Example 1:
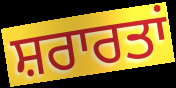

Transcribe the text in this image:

ਸ਼ਰਾਰਤਾਂ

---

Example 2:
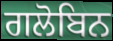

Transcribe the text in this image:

ਗਲੋਬਿਨ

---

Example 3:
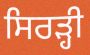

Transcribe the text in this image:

ਸਿਰੜ੍ਹੀ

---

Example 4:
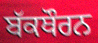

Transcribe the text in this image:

ਬੱਕਥੌਰਨ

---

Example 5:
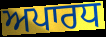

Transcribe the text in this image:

ਅਪਾਰਧ